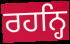
ਰਹਨ੍ਹਿ